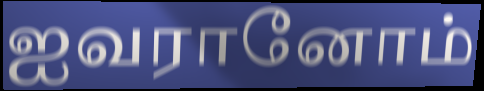
ஐவரானோம்